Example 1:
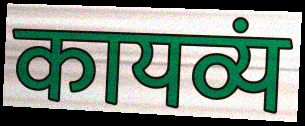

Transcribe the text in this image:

कायव्यं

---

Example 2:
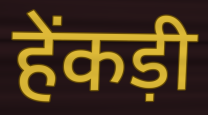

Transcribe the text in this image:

हेंकड़ी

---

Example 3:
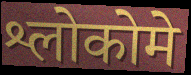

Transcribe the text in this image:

श्लोकोमे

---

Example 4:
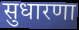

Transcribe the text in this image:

सुधारणा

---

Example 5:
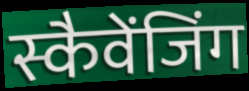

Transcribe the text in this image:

स्कैवेंजिंग